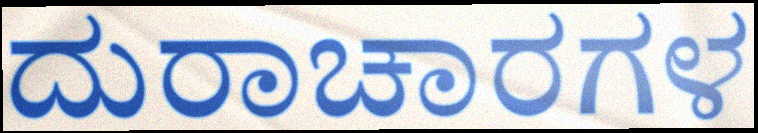
ದುರಾಚಾರಗಳ